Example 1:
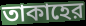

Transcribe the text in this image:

তাকাহের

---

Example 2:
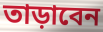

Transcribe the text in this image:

তাড়াবেন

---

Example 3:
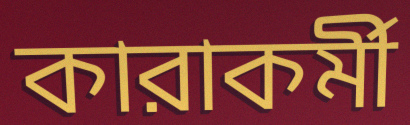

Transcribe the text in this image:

কারাকর্মী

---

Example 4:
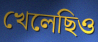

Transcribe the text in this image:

খেলেছিও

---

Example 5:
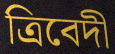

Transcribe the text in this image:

ত্রিবেদী